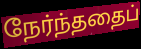
நேர்ந்ததைப்